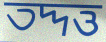
তদ্দত্ত